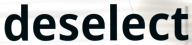
deselect